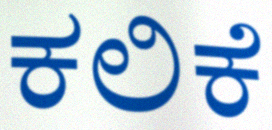
ಕಲಿಕೆ